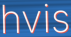
hvis